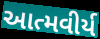
આત્મવીર્ય